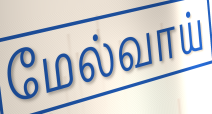
மேல்வாய்